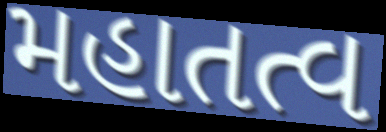
મહાતત્વ